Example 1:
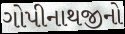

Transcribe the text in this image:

ગોપીનાથજીનો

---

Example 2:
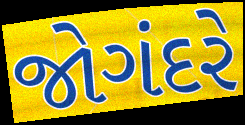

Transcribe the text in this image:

જોગંદરે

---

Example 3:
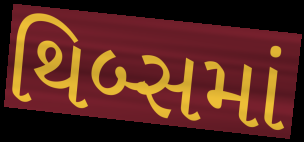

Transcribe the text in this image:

થિબ્સમાં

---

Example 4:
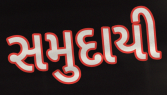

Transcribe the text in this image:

સમુદાયી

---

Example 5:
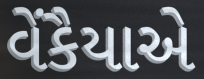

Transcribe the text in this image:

વેંકૈયાએ